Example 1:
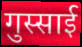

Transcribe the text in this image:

गुस्साई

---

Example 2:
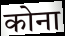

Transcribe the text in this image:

कोना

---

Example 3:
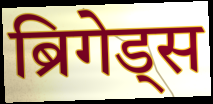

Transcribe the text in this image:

ब्रिगेड्स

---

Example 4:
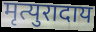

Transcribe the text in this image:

मृत्युरादाय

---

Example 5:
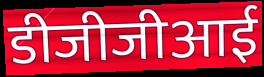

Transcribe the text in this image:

डीजीजीआई